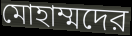
মোহাম্মদের